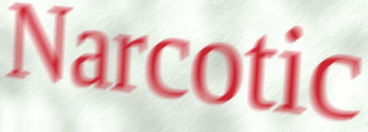
Narcotic